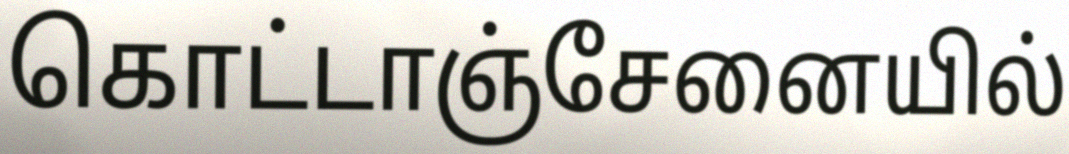
கொட்டாஞ்சேனையில்